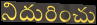
నిదురించు